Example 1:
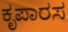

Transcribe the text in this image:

ಕೃಪಾರಸ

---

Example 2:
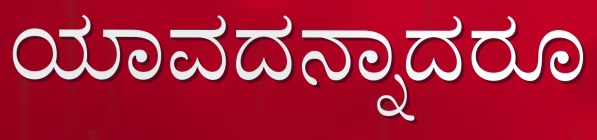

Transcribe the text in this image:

ಯಾವದನ್ನಾದರೂ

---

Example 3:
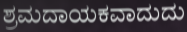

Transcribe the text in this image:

ಶ್ರಮದಾಯಕವಾದುದು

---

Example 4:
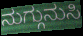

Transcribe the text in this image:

ನುಗ್ಗುನುಸಿ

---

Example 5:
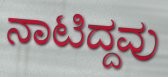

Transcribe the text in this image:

ನಾಟಿದ್ದವು